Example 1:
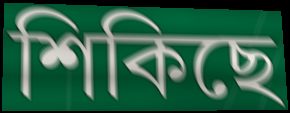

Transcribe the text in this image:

শিকিছে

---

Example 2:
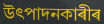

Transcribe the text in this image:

উৎপাদনকাৰীৰ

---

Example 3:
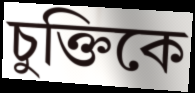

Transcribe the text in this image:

চুক্তিকে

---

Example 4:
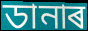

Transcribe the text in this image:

ডানাৰ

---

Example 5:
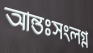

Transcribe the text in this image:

আন্তঃসংলগ্ন